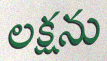
లక్షను